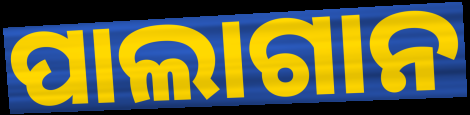
ପାଲାଗାନ